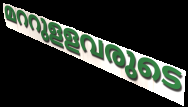
മററുളളവരുടെ